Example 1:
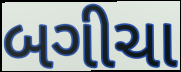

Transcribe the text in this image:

બગીચા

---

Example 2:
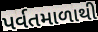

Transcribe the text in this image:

પર્વતમાળાથી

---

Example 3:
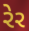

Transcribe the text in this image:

રેર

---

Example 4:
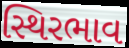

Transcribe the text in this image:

સ્થિરભાવ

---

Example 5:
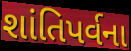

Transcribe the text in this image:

શાંતિપર્વના